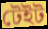
টেইট